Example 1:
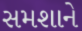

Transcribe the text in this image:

સમશાને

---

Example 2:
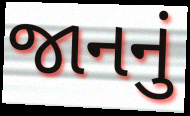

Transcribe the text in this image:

જાનનું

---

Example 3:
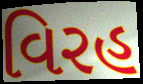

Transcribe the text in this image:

વિરહ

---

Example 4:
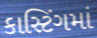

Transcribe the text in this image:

કાસ્ટિંગમાં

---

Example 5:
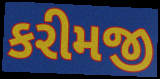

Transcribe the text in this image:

કરીમજી